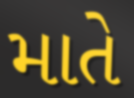
માતે